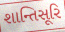
શાન્તિસૂરિ